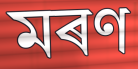
মৰণ